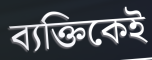
ব্যক্তিকেই